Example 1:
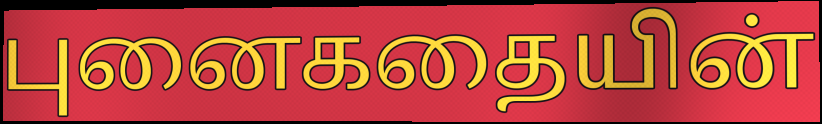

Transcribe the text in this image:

புனைகதையின்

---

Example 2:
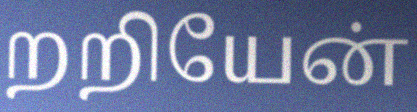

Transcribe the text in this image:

றறியேன்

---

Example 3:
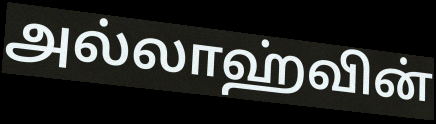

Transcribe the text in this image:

அல்லாஹ்வின்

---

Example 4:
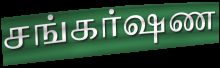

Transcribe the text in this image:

சங்கர்ஷண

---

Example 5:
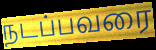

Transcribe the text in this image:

நடப்பவரை